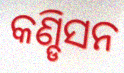
କଣ୍ଡିସନ